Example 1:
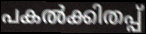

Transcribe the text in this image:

പകൽക്കിതപ്പ്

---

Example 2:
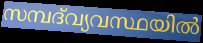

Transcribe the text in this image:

സമ്പദ്‌വ്യവസ്ഥയിൽ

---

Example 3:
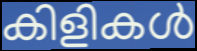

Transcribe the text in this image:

കിളികൾ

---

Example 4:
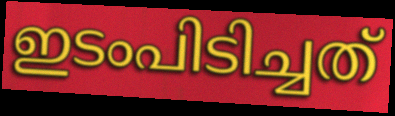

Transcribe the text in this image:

ഇടംപിടിച്ചത്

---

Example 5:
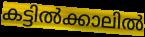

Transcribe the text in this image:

കട്ടിൽക്കാലിൽ